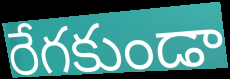
రేగకుండా